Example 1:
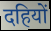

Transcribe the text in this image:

दहियों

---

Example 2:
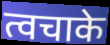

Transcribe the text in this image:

त्वचाके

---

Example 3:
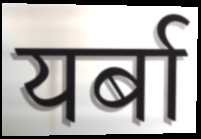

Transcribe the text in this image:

यर्बा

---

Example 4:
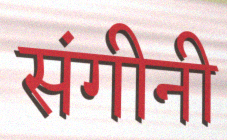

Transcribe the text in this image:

संगीनी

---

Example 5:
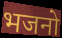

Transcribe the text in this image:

भजनो